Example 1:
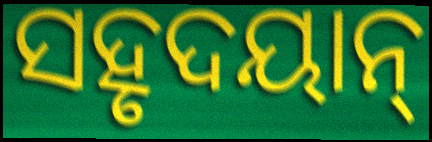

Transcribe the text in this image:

ସହୃଦୟାନ୍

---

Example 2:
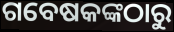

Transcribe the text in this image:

ଗବେଷକଙ୍କଠାରୁ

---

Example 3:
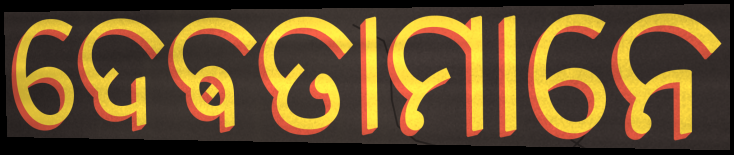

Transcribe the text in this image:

ଦେଵତାମାନେ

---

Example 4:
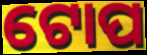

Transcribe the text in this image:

ଟୋପ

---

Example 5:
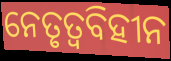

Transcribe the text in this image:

ନେତୃତ୍ୱବିହୀନ